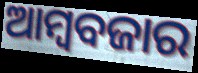
ଆମ୍ୱବଜାର